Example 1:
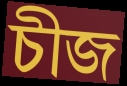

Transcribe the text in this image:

চীজ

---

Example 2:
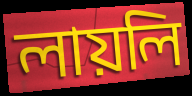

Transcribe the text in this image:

লায়লি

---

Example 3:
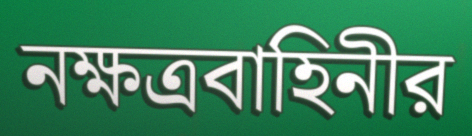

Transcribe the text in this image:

নক্ষত্রবাহিনীর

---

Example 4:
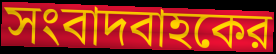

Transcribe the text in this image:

সংবাদবাহকের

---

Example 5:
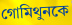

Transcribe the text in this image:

গোমিথুনকে